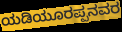
ಯಡಿಯೂರಪ್ಪನವರ